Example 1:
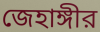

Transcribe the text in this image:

জেহাঙ্গীর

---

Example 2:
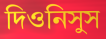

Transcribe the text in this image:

দিওনিসুস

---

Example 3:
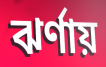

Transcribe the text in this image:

ঝর্ণায়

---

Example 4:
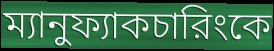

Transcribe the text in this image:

ম্যানুফ্যাকচারিংকে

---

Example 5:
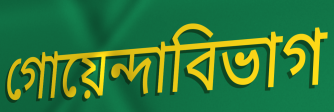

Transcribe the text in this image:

গোয়েন্দাবিভাগ